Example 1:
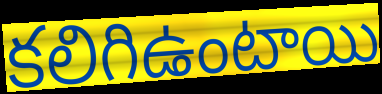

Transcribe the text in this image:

కలిగిఉంటాయి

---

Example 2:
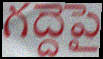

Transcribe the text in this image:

గద్దెపై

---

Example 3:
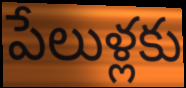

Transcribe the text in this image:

పేలుళ్లకు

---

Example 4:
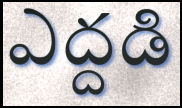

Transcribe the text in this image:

ఎద్దడి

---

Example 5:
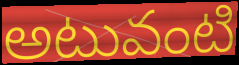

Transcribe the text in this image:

అటువంటి